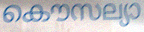
കൌസല്യാ